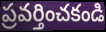
ప్రవర్తించకండి